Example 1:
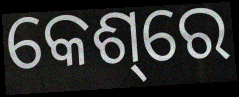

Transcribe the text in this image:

କେଶ୍‌ରେ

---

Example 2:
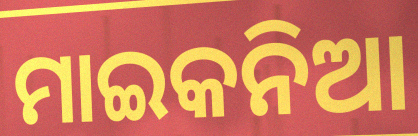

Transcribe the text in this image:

ମାଇକନିଆ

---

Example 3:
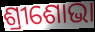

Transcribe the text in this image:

ଶ୍ରୀଶୋଭା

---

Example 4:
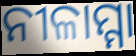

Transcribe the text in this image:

ନୀଳାମ୍ମା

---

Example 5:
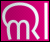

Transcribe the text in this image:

ଲା